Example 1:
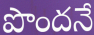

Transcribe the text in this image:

పొందనే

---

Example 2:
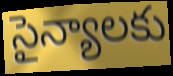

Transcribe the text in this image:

సైన్యాలకు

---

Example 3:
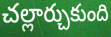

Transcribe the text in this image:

చల్లార్చుకుంది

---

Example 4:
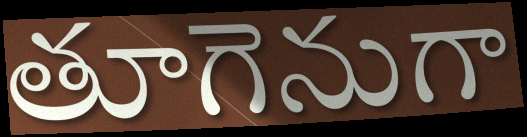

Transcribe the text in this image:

తూగెనుగా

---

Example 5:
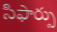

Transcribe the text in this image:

సిఫార్సు